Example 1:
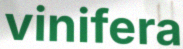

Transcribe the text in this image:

vinifera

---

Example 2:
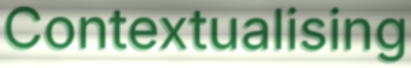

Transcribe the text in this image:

Contextualising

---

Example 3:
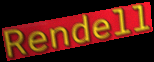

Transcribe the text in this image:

Rendell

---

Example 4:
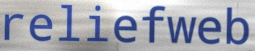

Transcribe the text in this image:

reliefweb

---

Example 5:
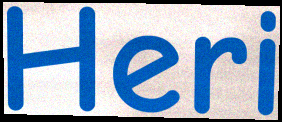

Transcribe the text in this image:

Heri